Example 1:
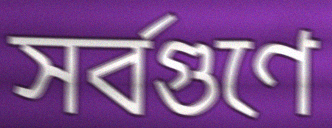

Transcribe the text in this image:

সর্বগুণে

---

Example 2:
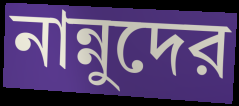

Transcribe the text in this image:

নান্নুদের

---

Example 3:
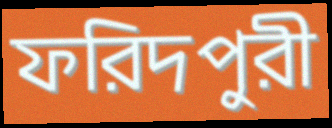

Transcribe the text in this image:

ফরিদপুরী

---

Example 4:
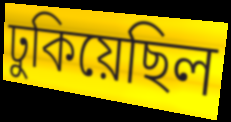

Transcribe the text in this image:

ঢুকিয়েছিল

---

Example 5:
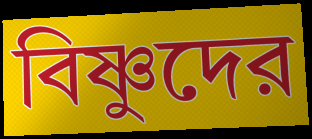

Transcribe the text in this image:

বিষ্ণুদের